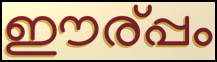
ഈര്പ്പം